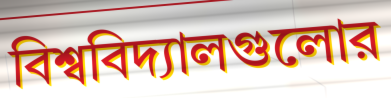
বিশ্ববিদ্যালগুলোর